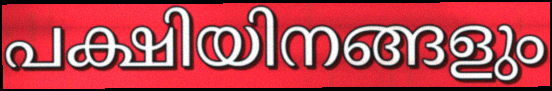
പക്ഷിയിനങ്ങളും